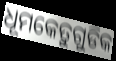
ଧୂମକେତୁଗୁଡିକ